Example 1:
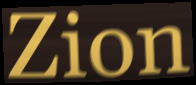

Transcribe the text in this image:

Zion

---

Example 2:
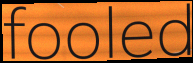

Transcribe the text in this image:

fooled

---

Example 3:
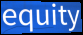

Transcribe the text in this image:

equity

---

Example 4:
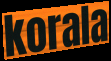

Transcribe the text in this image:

korala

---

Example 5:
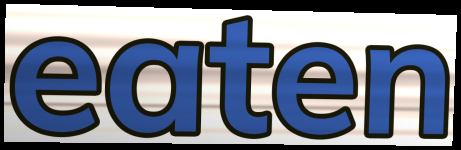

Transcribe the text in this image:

eaten